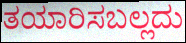
ತಯಾರಿಸಬಲ್ಲದು